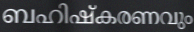
ബഹിഷ്കരണവും